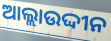
ଆଲ୍ଲାଉଦ୍ଦୀନ